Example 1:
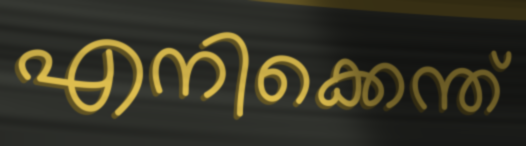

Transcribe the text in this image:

എനിക്കെന്ത്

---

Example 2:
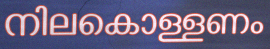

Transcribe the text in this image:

നിലകൊള്ളണം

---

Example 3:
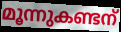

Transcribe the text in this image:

മൂന്നുകണ്ടന്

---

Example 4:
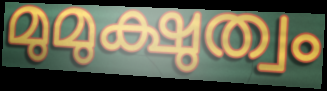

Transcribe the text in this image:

മുമുക്ഷുത്വം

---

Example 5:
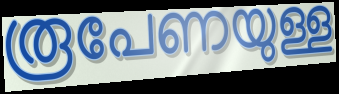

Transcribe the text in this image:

രൂപേണയുള്ള